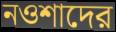
নওশাদের